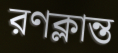
রণক্লান্ত